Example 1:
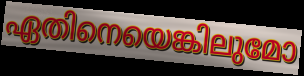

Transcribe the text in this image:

ഏതിനെയെങ്കിലുമോ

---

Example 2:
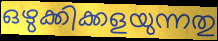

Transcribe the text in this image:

ഒഴുക്കിക്കളയുന്നതു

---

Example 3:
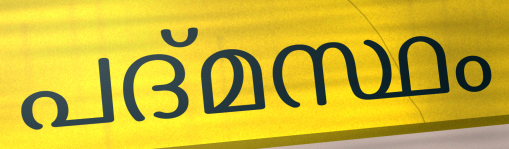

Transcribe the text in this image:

പദ്മസ്ഥം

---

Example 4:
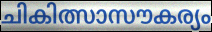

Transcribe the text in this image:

ചികിത്സാസൗകര്യം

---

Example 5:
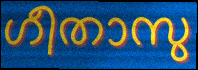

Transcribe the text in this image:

ഗീതാസു